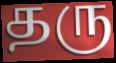
தரு